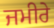
ਜਮੀਰੇ